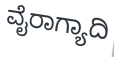
ವೈರಾಗ್ಯಾದಿ